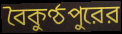
বৈকুণ্ঠপুরের